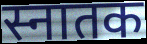
स्नातक